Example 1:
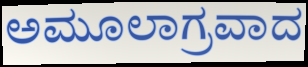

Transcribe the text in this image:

ಅಮೂಲಾಗ್ರವಾದ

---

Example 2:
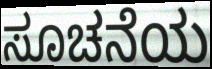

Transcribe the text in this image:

ಸೂಚನೆಯ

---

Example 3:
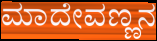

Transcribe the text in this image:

ಮಾದೇವಣ್ಣನ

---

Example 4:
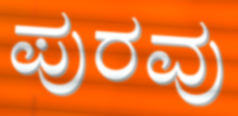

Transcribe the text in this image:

ಪುರವು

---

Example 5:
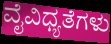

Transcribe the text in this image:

ವೈವಿಧ್ಯತೆಗಳು